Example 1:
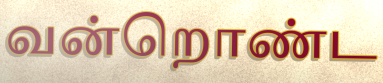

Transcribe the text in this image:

வன்றொண்ட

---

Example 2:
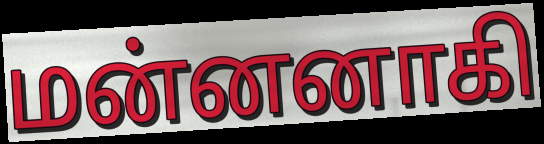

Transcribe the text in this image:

மன்னனாகி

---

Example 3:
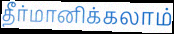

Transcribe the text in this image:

தீர்மானிக்கலாம்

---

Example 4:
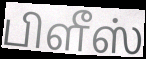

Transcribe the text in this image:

பிளீஸ்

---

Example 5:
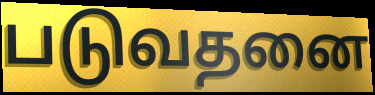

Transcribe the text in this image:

படுவதனை